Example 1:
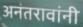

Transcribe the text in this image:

अनंतरावांनी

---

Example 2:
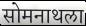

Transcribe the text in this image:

सोमनाथला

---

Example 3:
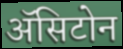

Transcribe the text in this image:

ॲसिटोन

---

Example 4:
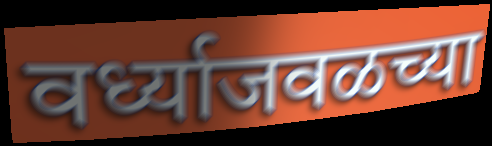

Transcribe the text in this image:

वर्ध्याजवळच्या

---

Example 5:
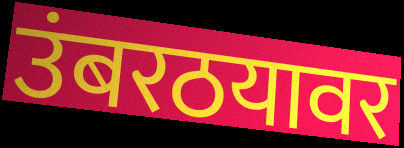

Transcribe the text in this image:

उंबरठयावर